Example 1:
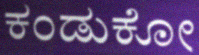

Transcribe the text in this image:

ಕಂಡುಕೋ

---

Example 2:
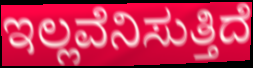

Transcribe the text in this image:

ಇಲ್ಲವೆನಿಸುತ್ತಿದೆ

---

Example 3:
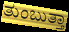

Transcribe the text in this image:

ತುಂಬುತ್ತಾ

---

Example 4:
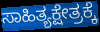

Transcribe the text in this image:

ಸಾಹಿತ್ಯಕ್ಷೇತ್ರಕ್ಕೆ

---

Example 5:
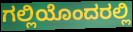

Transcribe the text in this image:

ಗಲ್ಲಿಯೊಂದರಲ್ಲಿ